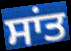
ਸਾਂਤ